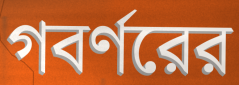
গবর্ণরের